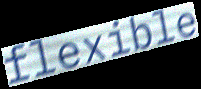
flexible